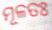
ମୂଳତଃ